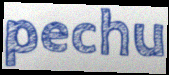
pechu